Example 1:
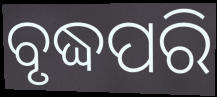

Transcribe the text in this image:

ବୃଦ୍ଧପରି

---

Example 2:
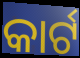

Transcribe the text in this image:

କାର୍ଟ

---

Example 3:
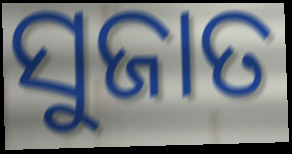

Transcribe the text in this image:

ସୁଜାତ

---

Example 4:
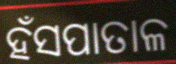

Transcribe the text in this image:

ହଁସପାତାଳ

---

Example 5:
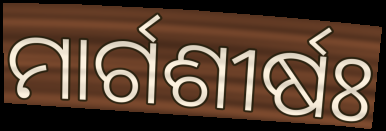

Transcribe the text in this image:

ମାର୍ଗଶୀର୍ଷଃ